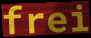
frei